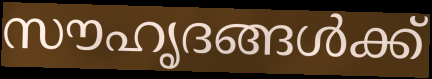
സൗഹൃദങ്ങൾക്ക്